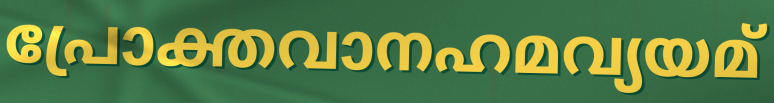
പ്രോക്തവാനഹമവ്യയമ്